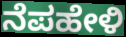
ನೆಪಹೇಳಿ